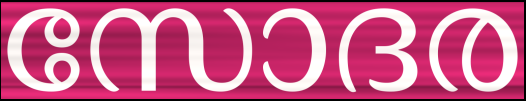
സോദര